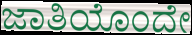
ಜಾತಿಯೊಂದೇ